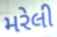
મરેલી